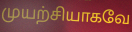
முயற்சியாகவே